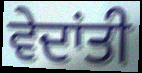
ਵੇਦਾਂਤੀ